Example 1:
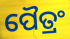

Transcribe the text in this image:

ପୈତ୍ରଂ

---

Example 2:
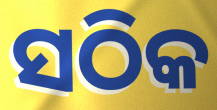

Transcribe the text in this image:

ସଠିକ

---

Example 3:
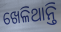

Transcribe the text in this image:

ଖେଳିଥାନ୍ତି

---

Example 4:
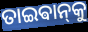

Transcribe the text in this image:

ତାଇଵାନ୍‌କୁ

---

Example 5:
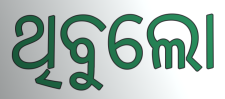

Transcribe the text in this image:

ଥିବୁଲୋ